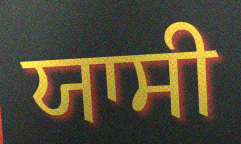
ਯਾਸੀ